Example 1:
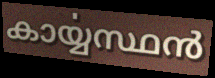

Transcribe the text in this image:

കാൎയ്യസ്ഥൻ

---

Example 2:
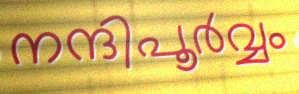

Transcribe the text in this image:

നന്ദിപൂർവ്വം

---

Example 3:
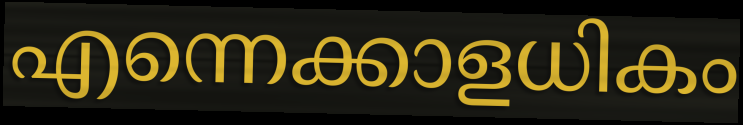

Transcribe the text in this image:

എന്നെക്കാളധികം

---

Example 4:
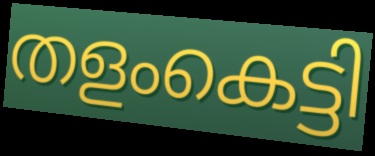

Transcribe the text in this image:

തളംകെട്ടി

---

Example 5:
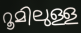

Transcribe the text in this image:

റൂമിലുള്ള